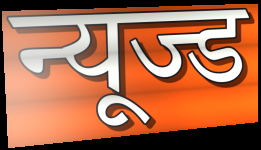
न्यूज्ड